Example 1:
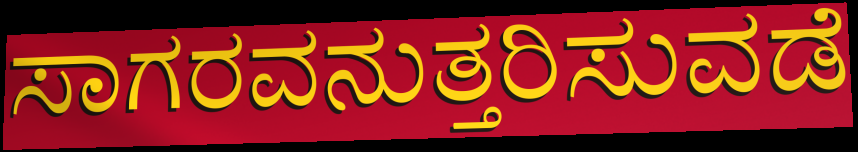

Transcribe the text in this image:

ಸಾಗರವನುತ್ತರಿಸುವಡೆ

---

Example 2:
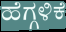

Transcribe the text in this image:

ಹೆಗ್ಗಳಿಕೆ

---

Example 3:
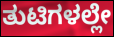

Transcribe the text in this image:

ತುಟಿಗಳಲ್ಲೇ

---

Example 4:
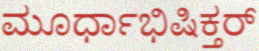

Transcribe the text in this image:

ಮೂರ್ಧಾಭಿಷಿಕ್ತರ್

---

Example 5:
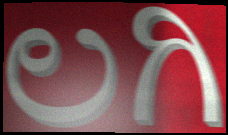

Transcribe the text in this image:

ಲಗಿ